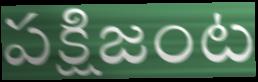
పక్షిజంట